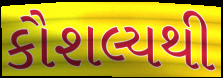
કૌશલ્યથી